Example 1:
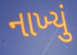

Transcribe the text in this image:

નાખ્‍યું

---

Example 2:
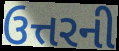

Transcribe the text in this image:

ઉત્તરની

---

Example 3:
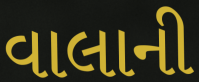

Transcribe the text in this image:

વાલાની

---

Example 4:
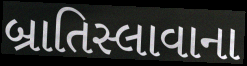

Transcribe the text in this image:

બ્રાતિસ્લાવાના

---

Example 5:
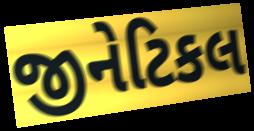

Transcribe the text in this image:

જીનેટિકલ